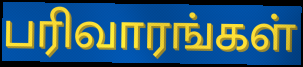
பரிவாரங்கள்